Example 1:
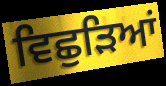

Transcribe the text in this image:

ਵਿਛੁੜਿਆਂ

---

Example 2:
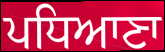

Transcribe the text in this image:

ਪਧਿਆਣਾ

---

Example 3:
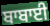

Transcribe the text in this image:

ਬਾਬਾਈ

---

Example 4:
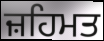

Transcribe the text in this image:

ਜ਼ਹਿਮਤ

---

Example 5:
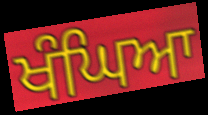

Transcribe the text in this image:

ਖੰਘਿਆ